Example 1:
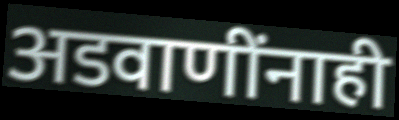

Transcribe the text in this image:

अडवाणींनाही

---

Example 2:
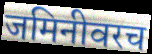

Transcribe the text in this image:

जमिनीवरच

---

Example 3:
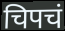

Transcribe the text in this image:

चिपचं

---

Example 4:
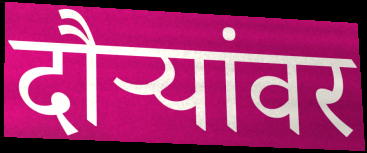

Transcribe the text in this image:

दौर्‍यांवर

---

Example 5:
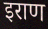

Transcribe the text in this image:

इराण